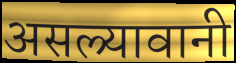
असल्यावानी